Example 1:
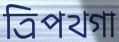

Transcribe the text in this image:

ত্রিপথগা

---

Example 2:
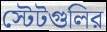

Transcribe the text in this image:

স্টেটগুলির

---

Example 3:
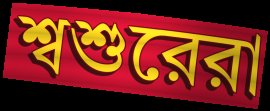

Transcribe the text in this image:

শ্বশুরেরা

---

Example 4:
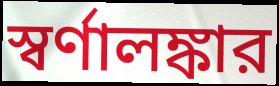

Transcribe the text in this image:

স্বর্ণালঙ্কার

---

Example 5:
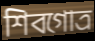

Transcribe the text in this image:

শিবগোত্র